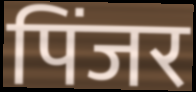
पिंजर